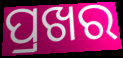
ପ୍ରଖର